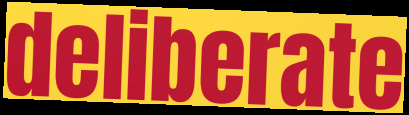
deliberate